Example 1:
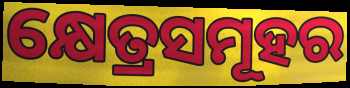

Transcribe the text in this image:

କ୍ଷେତ୍ରସମୂହର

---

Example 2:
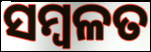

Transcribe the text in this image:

ସମ୍ବଳତ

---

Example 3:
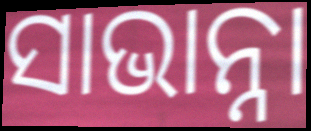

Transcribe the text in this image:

ସାଭାନ୍ନା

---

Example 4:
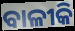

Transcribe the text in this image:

ବାଳୀକି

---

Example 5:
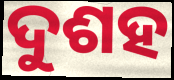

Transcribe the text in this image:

ଦୁଶହ